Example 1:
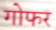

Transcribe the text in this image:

गोफर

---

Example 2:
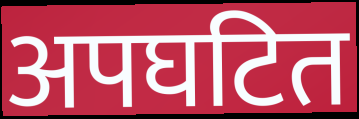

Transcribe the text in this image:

अपघटित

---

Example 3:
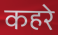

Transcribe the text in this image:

कहरे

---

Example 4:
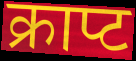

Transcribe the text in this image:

क्राप्ट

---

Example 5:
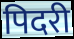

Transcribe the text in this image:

पिदरी